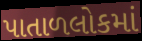
પાતાળલોકમાં